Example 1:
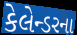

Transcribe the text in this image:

કેલેન્ડરના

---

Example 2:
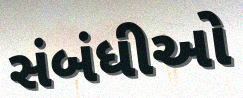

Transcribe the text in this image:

સંબંધીઓ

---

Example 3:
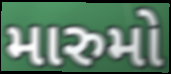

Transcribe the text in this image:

મારુમો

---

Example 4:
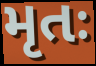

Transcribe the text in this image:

મૃતઃ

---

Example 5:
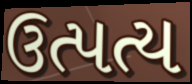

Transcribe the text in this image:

ઉત્પત્ય